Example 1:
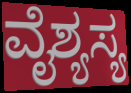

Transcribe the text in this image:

ವೈಶ್ಯಸ್ಯ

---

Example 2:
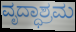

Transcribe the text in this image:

ವೃದ್ಧಾಶ್ರಮ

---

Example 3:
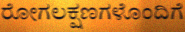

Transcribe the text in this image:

ರೋಗಲಕ್ಷಣಗಳೊಂದಿಗೆ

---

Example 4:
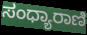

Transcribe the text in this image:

ಸಂಧ್ಯಾರಾಣಿ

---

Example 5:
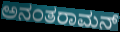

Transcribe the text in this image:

ಅನಂತರಾಮನ್